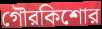
গৌরকিশোর